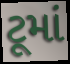
ટૂમાં